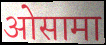
ओसामा